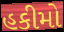
હકીમો